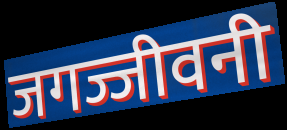
जगज्जीवनी